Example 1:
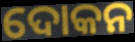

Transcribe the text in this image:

ଦୋକନ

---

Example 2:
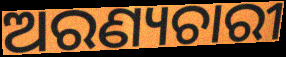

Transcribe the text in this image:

ଅରଣ୍ୟଚାରୀ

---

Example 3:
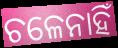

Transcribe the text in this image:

ଚଳେନାହିଁ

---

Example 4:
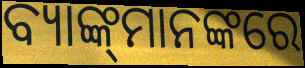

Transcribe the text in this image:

ବ୍ୟାଙ୍କ୍‌ମାନଙ୍କରେ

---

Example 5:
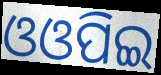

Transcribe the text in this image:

ଓଓପିଇ